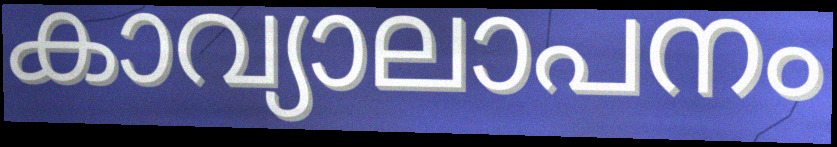
കാവ്യാലാപനം